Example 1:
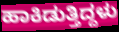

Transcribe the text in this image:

ಹಾಕಿಡುತ್ತಿದ್ದಳು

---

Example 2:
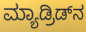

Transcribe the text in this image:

ಮ್ಯಾಡ್ರಿಡ್‌ನ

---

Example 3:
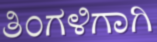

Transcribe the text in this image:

ತಿಂಗಳಿಗಾಗಿ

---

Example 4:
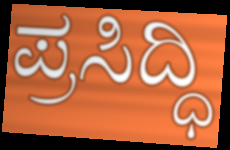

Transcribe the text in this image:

ಪ್ರಸಿದ್ಧಿ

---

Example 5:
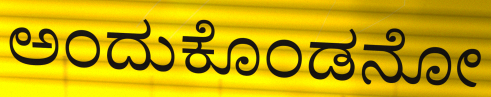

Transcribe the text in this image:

ಅಂದುಕೊಂಡನೋ